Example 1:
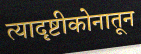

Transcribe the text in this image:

त्यादृष्टीकोनातून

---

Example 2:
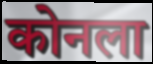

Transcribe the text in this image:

कोनला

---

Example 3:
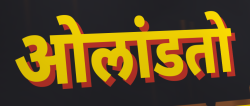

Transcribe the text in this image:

ओलांडतो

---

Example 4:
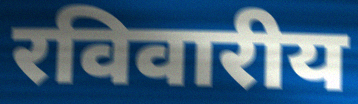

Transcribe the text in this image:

रविवारीय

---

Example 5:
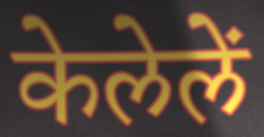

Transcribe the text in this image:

केलेलें